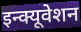
इन्क्यूवेशन